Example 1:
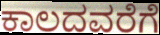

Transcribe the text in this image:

ಕಾಲದವರೆಗೆ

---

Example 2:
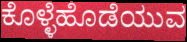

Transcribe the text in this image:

ಕೊಳ್ಳೆಹೊಡೆಯುವ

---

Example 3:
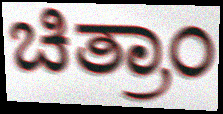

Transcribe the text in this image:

ಚಿತ್ರಾಂ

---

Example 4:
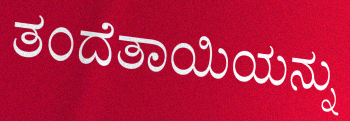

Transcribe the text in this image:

ತಂದೆತಾಯಿಯನ್ನು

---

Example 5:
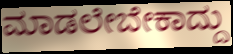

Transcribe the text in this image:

ಮಾಡಲೇಬೇಕಾದ್ದು